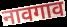
नावगाव